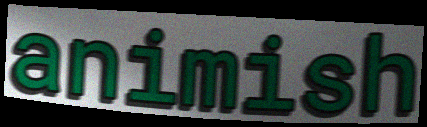
animish